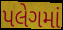
પલેગમાં